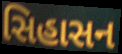
સિહાસન